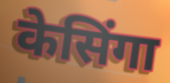
केसिंगा